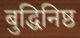
बुद्धिनिष्ठ